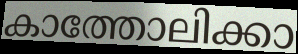
കാത്തോലിക്കാ